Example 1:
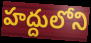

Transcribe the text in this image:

హద్దులోని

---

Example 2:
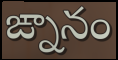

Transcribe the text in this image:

ఙ్నానం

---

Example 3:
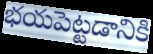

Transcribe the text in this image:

భయపెట్టడానికి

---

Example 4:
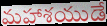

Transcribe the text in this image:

మహాశయుడే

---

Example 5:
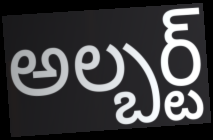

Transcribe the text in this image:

అల్బర్ట్